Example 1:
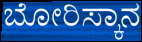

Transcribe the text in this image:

ಬೋರಿಸ್ಕಾನ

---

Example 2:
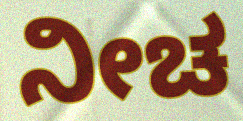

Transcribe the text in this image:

ನೀಚ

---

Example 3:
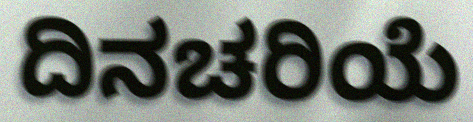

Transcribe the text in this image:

ದಿನಚರಿಯೆ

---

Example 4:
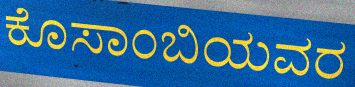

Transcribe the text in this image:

ಕೊಸಾಂಬಿಯವರ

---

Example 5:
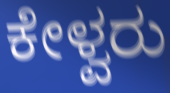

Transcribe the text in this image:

ಕೇಳ್ವರು